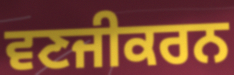
ਵਣਜੀਕਰਨ